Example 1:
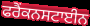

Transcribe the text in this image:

ਫਰੈਂਕਨਸਟਾਈਨ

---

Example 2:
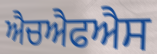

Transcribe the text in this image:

ਐਚਐਫਐਸ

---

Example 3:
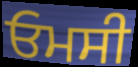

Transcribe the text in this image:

ਓਮਸੀ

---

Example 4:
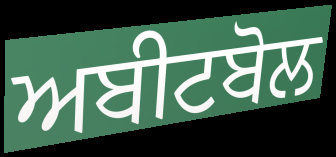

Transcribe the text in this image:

ਅਬੀਟਬੋਲ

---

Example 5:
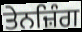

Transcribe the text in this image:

ਤੇਨਜ਼ਿੰਗ